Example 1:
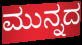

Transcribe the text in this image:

ಮುನ್ನದ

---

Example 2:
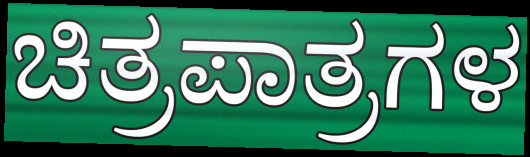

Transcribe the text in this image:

ಚಿತ್ರಪಾತ್ರಗಳ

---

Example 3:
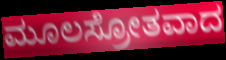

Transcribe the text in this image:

ಮೂಲಸ್ರೋತವಾದ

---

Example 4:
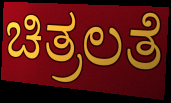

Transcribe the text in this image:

ಚಿತ್ರಲತೆ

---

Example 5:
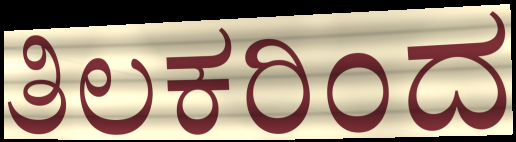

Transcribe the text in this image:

ತಿಲಕರಿಂದ